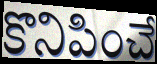
కొనిపించే